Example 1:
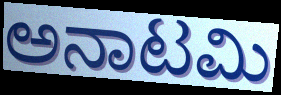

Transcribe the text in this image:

ಅನಾಟಮಿ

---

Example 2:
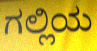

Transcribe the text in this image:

ಗಲ್ಲಿಯ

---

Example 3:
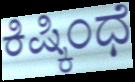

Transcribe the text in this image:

ಕಿಷ್ಕಿಂಧೆ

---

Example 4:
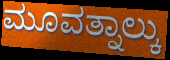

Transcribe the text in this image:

ಮೂವತ್ನಾಲ್ಕು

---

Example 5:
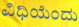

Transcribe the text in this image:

ವಿಧಿಯೆಂದು